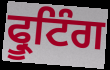
ਫ੍ਰੂਟਿੰਗ